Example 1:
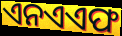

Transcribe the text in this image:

ଏନଏଏଫ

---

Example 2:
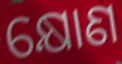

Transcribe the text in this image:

କ୍ଷୋଣ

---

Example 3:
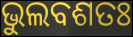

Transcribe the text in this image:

ଭୁଲବଶତଃ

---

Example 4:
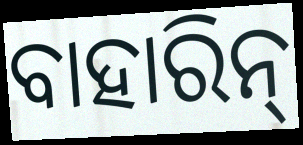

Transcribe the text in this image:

ବାହାରିନ୍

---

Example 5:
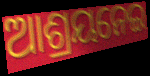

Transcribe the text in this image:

ଆଶ୍ରୟନେଇ